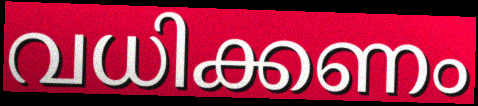
വധിക്കണം